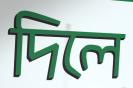
দিলে